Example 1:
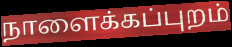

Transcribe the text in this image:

நாளைக்கப்புறம்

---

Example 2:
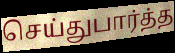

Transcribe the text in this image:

செய்துபார்த்த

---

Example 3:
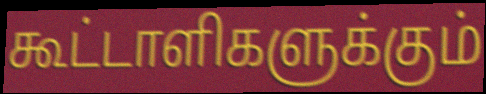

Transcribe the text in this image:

கூட்டாளிகளுக்கும்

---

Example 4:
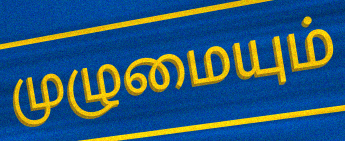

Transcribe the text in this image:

முழுமையும்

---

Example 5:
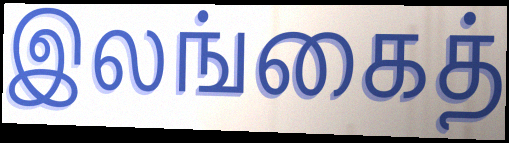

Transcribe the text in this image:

இலங்கைத்